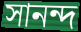
সানন্দ